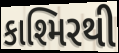
કાશ્મિરથી